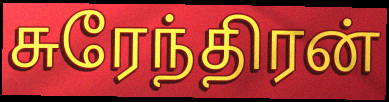
சுரேந்திரன்